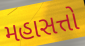
મહાસત્તો